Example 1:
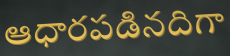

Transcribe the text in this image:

ఆధారపడినదిగా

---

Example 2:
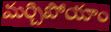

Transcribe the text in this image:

మర్చిపోయాం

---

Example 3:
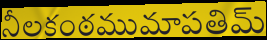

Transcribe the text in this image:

నీలకంఠముమాపతిమ్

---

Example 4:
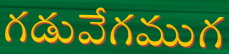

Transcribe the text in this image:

గడువేగముగ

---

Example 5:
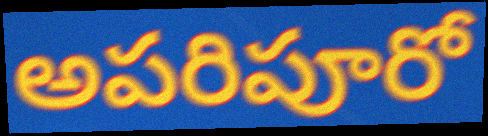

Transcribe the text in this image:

అపరిపూరో